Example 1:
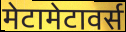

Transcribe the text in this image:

मेटामेटावर्स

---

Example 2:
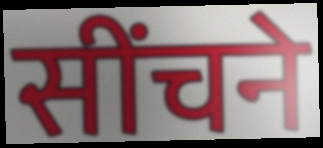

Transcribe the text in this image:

सींचने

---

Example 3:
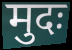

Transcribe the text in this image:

मुदः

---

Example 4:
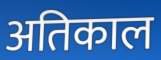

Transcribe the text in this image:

अतिकाल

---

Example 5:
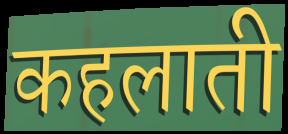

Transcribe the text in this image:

कहलाती